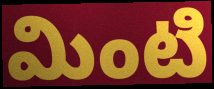
మింటి